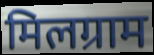
मिलग्राम